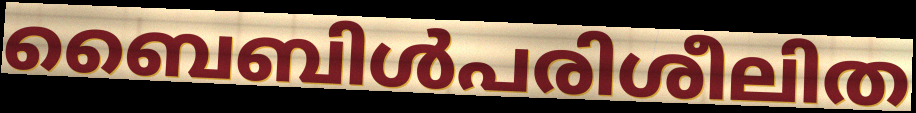
ബൈബിൾപരിശീലിത